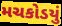
મચકોડયું